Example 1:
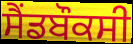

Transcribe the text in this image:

ਸੈਂਡਬੌਕਸੀ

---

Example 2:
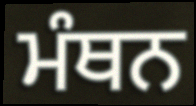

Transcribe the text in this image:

ਮੰਥਨ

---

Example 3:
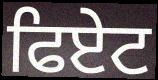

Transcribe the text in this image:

ਫਿਏਟ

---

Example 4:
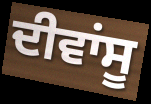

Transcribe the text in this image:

ਦੀਵਾਂਸੂ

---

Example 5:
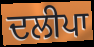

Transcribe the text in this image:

ਦਲੀਪਾ